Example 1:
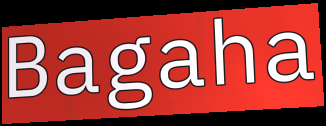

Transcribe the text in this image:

Bagaha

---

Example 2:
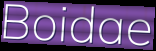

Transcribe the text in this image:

Boidae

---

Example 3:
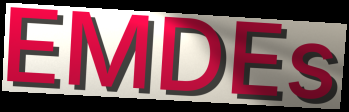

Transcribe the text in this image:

EMDEs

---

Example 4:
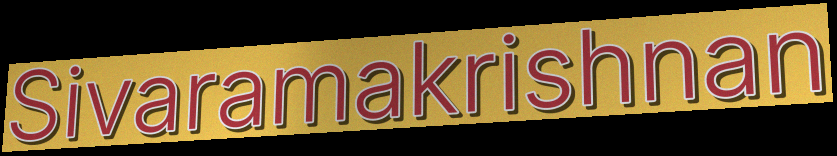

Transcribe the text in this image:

Sivaramakrishnan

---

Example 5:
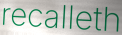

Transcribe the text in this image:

recalleth